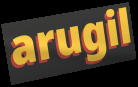
arugil